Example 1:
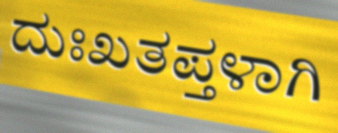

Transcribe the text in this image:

ದುಃಖತಪ್ತಳಾಗಿ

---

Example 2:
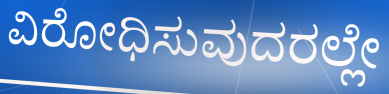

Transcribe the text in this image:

ವಿರೋಧಿಸುವುದರಲ್ಲೇ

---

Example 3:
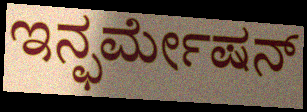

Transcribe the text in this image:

ಇನ್ಫರ್ಮೇಷನ್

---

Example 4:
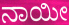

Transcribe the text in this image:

ನಾಯೀ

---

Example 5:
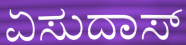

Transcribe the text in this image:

ಏಸುದಾಸ್